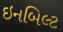
ઇનબિલ્ટ